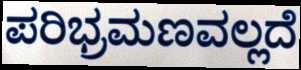
ಪರಿಭ್ರಮಣವಲ್ಲದೆ